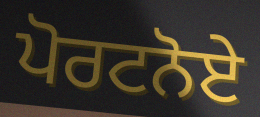
ਪੋਰਟਨੋਏ